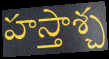
హస్తాశ్చ